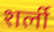
शर्ली